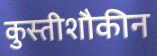
कुस्तीशौकीन